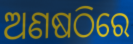
ଅଣଷଠିରେ